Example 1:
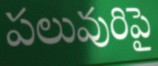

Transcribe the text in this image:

పలువురిపై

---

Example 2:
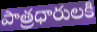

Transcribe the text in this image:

పాత్రధారులకి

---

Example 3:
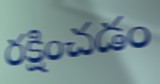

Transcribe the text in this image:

రక్షించడం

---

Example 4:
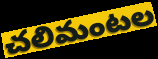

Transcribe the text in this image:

చలిమంటల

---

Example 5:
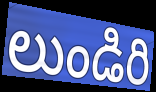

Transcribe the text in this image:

లుండిరి